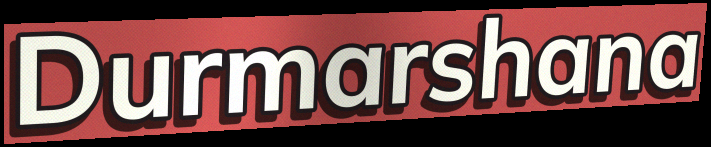
Durmarshana